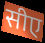
सीए